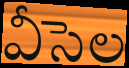
వీసెల